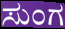
ಸುಂಗ